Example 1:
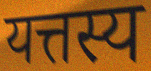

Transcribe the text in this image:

यत्तस्य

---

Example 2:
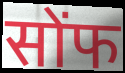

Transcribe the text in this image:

सोंफ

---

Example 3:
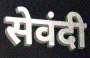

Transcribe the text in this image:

सेवंदी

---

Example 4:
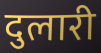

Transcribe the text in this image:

दुलारी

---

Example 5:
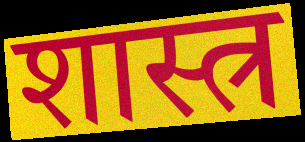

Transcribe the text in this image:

शास्त्र